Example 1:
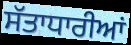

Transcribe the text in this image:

ਸੱਤਾਧਾਰੀਆਂ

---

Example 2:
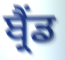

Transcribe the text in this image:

ਬ੍ਰੈਂਡ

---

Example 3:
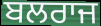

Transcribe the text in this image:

ਬਲਰਾਜ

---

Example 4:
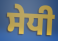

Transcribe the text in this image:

ਸੇਧੀ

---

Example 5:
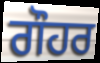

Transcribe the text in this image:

ਗੌਹਰ